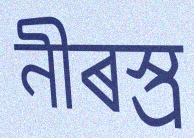
নীৰস্ত্ৰ